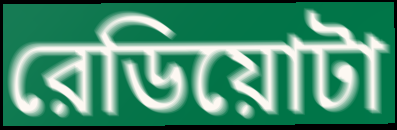
রেডিয়োটা